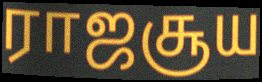
ராஜசூய